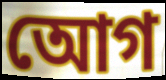
আেগ